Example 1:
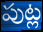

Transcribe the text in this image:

పుట్ల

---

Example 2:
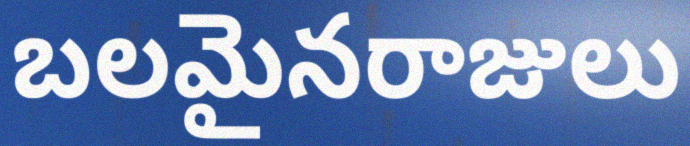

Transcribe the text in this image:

బలమైనరాజులు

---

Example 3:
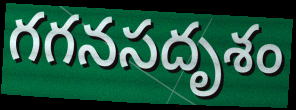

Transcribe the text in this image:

గగనసదృశం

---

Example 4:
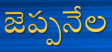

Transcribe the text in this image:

జెప్పనేల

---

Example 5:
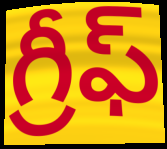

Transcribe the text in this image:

గ్రీఫ్